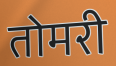
तोमरी